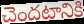
చెందటానికి